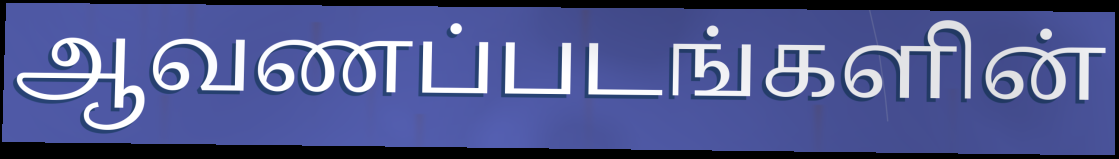
ஆவணப்படங்களின்